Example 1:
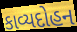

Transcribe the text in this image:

કાવ્યદોહન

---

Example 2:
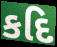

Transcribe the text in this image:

કદિ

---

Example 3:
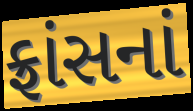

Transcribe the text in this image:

ફ્રાંસનાં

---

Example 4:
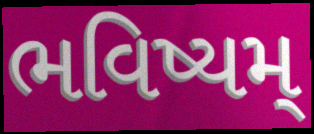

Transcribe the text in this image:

ભવિષ્યમ્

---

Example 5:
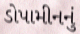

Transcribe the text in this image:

ડોપામીનનું